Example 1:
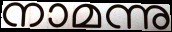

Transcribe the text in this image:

നാമന്നു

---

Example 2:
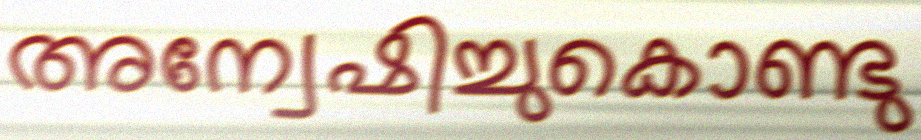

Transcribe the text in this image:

അന്വേഷിച്ചുകൊണ്ടു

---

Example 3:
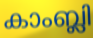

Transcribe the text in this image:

കാംബ്ലി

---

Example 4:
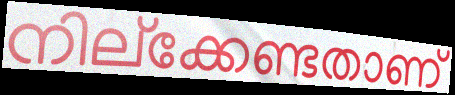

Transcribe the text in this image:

നില്ക്കേണ്ടതാണ്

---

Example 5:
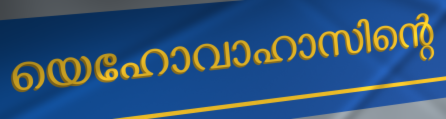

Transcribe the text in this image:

യെഹോവാഹാസിന്റെ